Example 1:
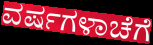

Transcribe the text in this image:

ವರ್ಷಗಳಾಚೆಗೆ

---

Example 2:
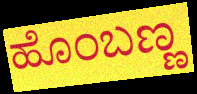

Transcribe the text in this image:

ಹೊಂಬಣ್ಣ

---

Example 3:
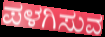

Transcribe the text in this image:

ಪಳಗಿಸುವ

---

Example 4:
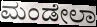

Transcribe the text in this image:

ಮಂಡೇಲಾ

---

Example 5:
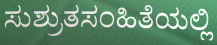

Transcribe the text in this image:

ಸುಶ್ರುತಸಂಹಿತೆಯಲ್ಲಿ